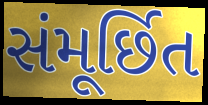
સંમૂર્છિત